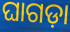
ଘାଗଡ଼ା